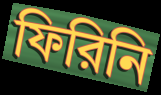
ফিরিনি